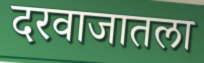
दरवाजातला